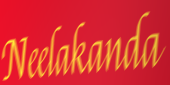
Neelakanda